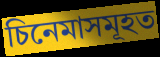
চিনেমাসমূহত